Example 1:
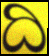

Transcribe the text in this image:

ದಿ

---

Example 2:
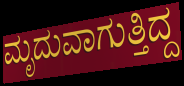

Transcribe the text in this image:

ಮೃದುವಾಗುತ್ತಿದ್ದ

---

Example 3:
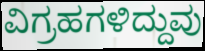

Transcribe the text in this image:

ವಿಗ್ರಹಗಳಿದ್ದುವು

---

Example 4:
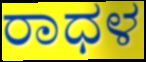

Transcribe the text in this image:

ರಾಧಳ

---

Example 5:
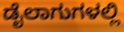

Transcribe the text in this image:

ಡೈಲಾಗುಗಳಲ್ಲಿ